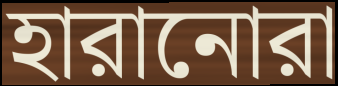
হারানোরা